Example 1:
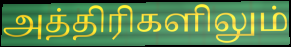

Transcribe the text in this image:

அத்திரிகளிலும்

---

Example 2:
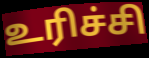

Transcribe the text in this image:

உரிச்சி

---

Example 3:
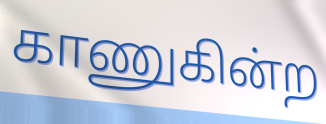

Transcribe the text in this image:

காணுகின்ற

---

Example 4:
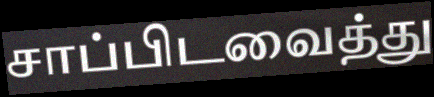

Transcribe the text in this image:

சாப்பிடவைத்து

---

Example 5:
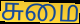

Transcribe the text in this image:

சுமை